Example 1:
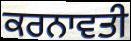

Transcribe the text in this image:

ਕਰਨਾਵਤੀ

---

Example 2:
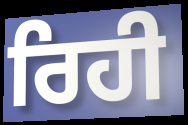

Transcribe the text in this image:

ਰਿਹੀ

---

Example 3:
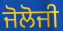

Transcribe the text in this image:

ਜੋਲੋਜੀ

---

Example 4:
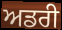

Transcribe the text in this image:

ਅਡਰੀ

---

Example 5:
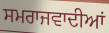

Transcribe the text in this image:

ਸਮਰਾਜਵਾਦੀਆਂ